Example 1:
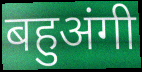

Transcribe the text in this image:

बहुअंगी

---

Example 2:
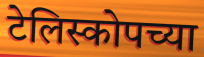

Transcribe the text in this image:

टेलिस्कोपच्या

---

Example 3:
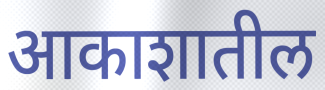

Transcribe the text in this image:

आकाशातील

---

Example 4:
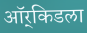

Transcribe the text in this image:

ऑर्किडला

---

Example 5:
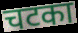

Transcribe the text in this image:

चटका